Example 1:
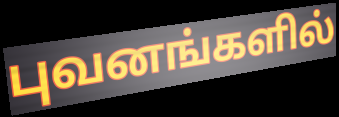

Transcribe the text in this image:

புவனங்களில்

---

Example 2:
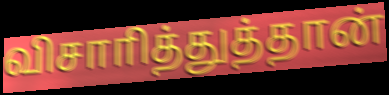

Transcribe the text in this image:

விசாரித்துத்தான்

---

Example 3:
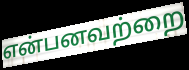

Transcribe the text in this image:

என்பனவற்றை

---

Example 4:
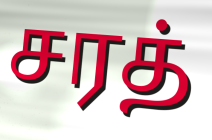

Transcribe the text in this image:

சரத்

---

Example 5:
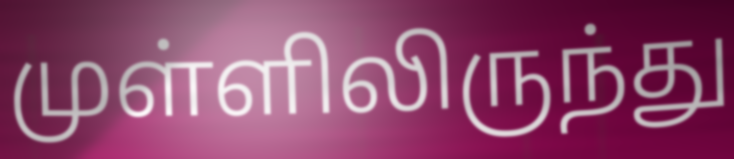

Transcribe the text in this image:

முள்ளிலிருந்து